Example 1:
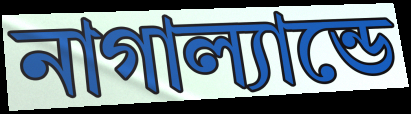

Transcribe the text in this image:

নাগাল্যান্ডে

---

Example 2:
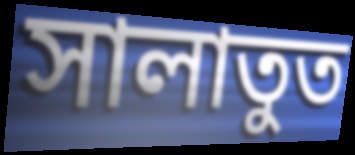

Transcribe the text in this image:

সালাতুত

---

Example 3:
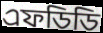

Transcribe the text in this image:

এফডিডি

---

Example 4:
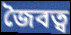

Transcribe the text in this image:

জৈবত্ব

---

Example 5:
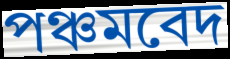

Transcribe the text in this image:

পঞ্চমবেদ